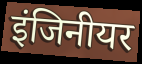
इंजिनीयर